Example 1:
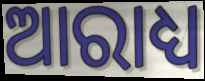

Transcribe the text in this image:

ଆରାଧ୍ୟ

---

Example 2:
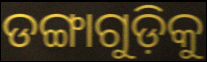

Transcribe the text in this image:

ଡଙ୍ଗାଗୁଡ଼ିକୁ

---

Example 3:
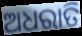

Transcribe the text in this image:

ଅଧରାତି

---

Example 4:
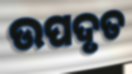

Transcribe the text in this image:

ଉପଦୃତ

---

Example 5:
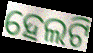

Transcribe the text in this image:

ହେଲଟି